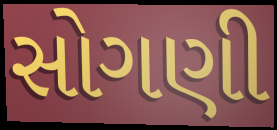
સોગણી